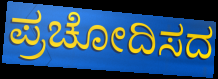
ಪ್ರಚೋದಿಸದ